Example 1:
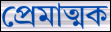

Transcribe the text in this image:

প্রেমাত্মক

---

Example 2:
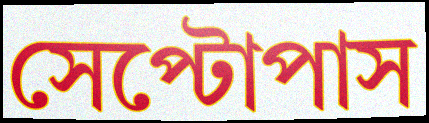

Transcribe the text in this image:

সেপ্টোপাস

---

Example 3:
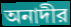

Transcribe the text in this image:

অনাদীর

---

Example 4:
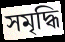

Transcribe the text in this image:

সমৃদ্ধি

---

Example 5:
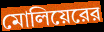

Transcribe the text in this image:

মোলিয়েরের